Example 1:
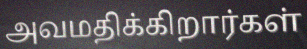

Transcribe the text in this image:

அவமதிக்கிறார்கள்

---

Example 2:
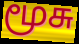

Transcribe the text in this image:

மூசு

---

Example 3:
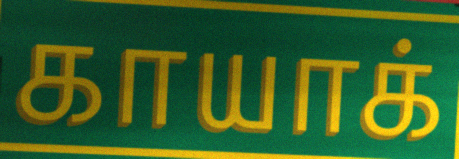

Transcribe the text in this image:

காயாக்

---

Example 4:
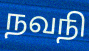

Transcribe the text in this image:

நவநி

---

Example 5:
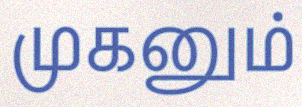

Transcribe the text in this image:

முகனும்